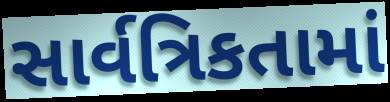
સાર્વત્રિકતામાં